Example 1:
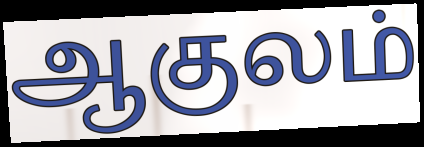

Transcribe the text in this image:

ஆகுலம்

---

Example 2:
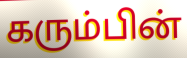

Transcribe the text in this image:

கரும்பின்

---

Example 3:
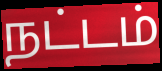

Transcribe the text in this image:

நட்டம்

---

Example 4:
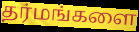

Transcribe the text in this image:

தர்மங்களை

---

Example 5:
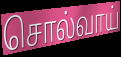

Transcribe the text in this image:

சொல்வாய்